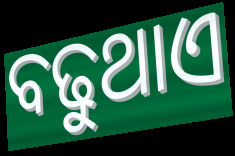
ବଢୁଥାଏ